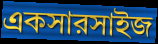
একসারসাইজ